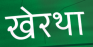
खेरथा